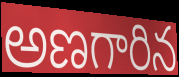
అణగారిన